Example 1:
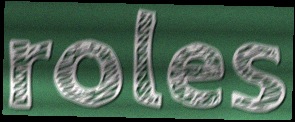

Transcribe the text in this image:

roles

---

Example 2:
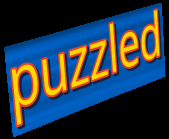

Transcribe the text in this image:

puzzled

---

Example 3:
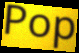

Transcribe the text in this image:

Pop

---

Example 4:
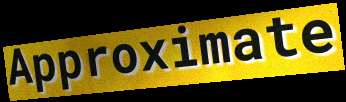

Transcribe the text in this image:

Approximate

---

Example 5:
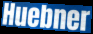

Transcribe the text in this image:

Huebner